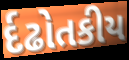
ર્દઢોતકીય